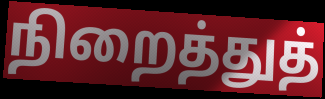
நிறைத்துத்